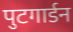
पुटगार्डन